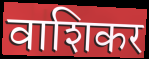
वाशिकर